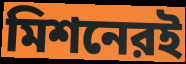
মিশনেরই